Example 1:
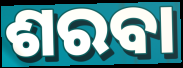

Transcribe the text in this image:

ଶରବା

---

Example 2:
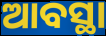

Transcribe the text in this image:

ଆବସ୍ଥା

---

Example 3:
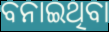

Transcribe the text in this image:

ବନାଇଥିବା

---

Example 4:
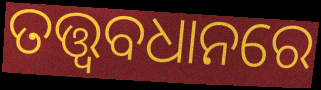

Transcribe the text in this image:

ତତ୍ତ୍ୱବଧାନରେ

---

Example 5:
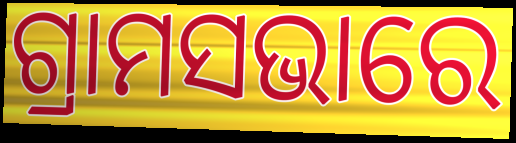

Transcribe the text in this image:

ଗ୍ରାମସଭାରେ